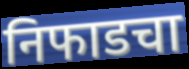
निफाडचा